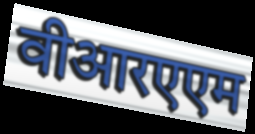
वीआरएएम